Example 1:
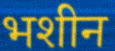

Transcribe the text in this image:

भशीन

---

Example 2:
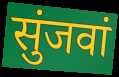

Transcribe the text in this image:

सुंजवां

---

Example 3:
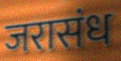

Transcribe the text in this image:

जरासंध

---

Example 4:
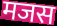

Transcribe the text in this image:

मजस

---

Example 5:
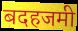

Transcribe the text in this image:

बदहजमी